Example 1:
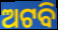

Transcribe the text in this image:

ଅଟବି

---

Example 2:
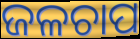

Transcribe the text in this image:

ଜଳଚାପ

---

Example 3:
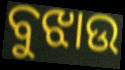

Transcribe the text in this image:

ବୁଝାଉ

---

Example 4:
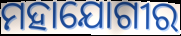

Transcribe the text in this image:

ମହାଯୋଗୀର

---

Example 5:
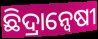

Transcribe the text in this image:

ଛିଦ୍ରାନ୍ୱେଷୀ